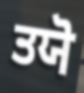
ਤਯੋ